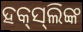
ହକ୍‌ସ୍‌ଲିଙ୍କ